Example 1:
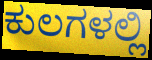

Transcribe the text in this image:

ಕುಲಗಳಲ್ಲಿ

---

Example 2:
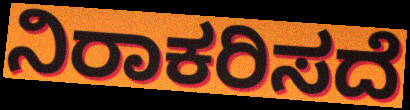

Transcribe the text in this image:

ನಿರಾಕರಿಸದೆ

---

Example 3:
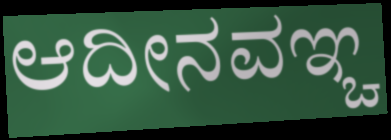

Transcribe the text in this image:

ಆದೀನವಞ್ಚ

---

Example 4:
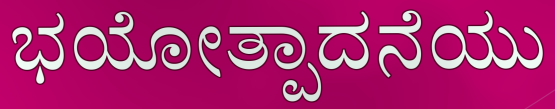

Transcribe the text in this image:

ಭಯೋತ್ಪಾದನೆಯು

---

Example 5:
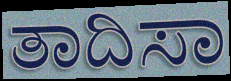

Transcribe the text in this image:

ತಾದಿಸಾ